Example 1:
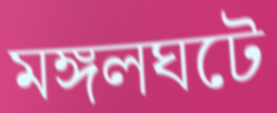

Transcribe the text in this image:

মঙ্গলঘটে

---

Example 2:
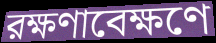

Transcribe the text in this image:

রক্ষণাবেক্ষণে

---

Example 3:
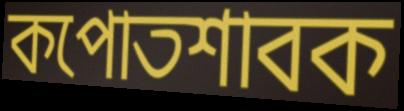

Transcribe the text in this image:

কপোতশাবক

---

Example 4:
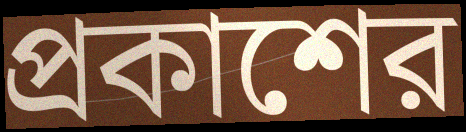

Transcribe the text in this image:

প্রকাশের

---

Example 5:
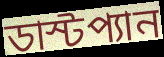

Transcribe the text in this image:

ডাস্টপ্যান